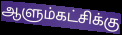
ஆளும்கட்சிக்கு